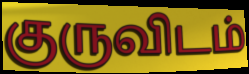
குருவிடம்